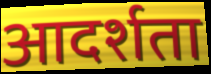
आदर्शता